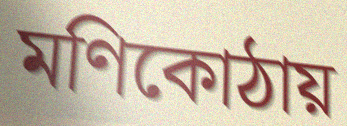
মণিকোঠায়